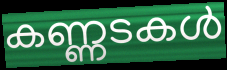
കണ്ണടകൾ